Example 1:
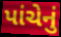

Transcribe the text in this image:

પાંચેનું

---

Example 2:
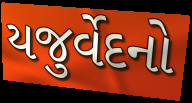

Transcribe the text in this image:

યજુર્વેદનો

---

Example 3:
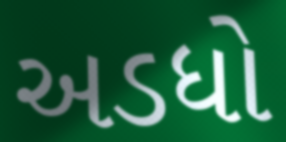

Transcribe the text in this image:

અડધો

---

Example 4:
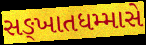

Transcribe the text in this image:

સઙ્ખાતધમ્માસે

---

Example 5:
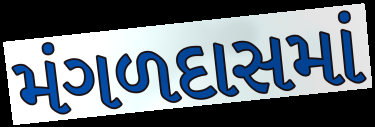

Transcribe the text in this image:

મંગળદાસમાં